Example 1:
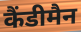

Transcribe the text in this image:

कैंडीमैन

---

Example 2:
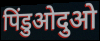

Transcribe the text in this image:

पिंडुओदुओ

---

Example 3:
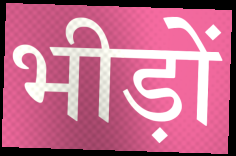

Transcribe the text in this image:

भीड़ों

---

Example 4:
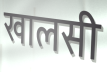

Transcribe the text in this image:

खालसी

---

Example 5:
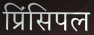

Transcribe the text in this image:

प्रिंसिपल